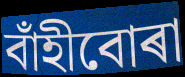
বাঁহীবোৰা